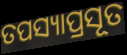
ତପସ୍ୟାପ୍ରସୂତ